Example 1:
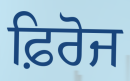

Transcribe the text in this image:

ਫ਼ਿਰੋਜ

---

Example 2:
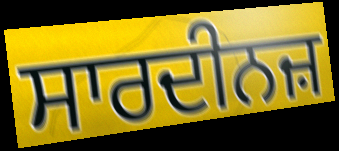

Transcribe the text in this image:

ਸਾਰਦੀਨਜ਼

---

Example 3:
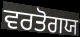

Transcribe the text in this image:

ਵਰਤੋਗਯ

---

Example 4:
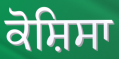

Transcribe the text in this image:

ਕੋਸ਼ਿਸਾ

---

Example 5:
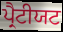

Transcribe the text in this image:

ਪ੍ਰੈਟੀਯਟ